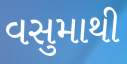
વસુમાથી